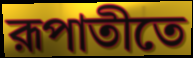
রূপাতীতে